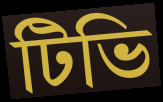
টিভি